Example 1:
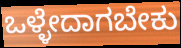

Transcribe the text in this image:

ಒಳ್ಳೇದಾಗಬೇಕು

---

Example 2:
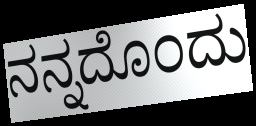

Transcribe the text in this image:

ನನ್ನದೊಂದು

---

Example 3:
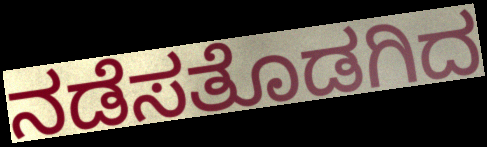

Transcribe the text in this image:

ನಡೆಸತೊಡಗಿದ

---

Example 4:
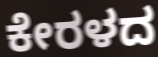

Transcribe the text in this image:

ಕೇರಳದ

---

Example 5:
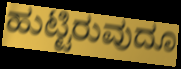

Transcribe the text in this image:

ಹುಟ್ಟಿರುವುದೂ